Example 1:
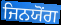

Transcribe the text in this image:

ਜਿਨਯੋਂਗ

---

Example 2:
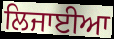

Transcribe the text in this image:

ਲਿਜਾਈਆ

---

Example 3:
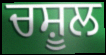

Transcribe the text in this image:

ਚਸ਼ੂਲ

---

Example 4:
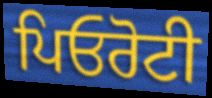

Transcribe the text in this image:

ਪਿਓਰੋਟੀ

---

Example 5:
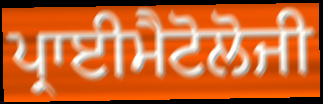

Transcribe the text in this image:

ਪ੍ਰਾਈਮੈਟੋਲੋਜੀ